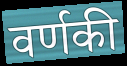
वर्णकी